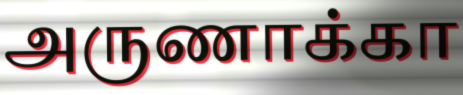
அருணாக்கா